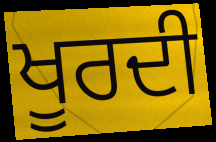
ਖੂਰਦੀ